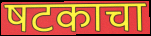
षटकाचा